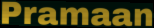
Pramaan